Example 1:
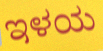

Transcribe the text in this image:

ಇಳಯ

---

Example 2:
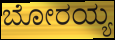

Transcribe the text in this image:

ಬೋರಯ್ಯ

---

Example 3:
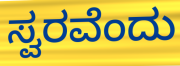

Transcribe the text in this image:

ಸ್ವರವೆಂದು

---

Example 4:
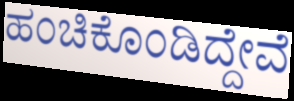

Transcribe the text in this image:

ಹಂಚಿಕೊಂಡಿದ್ದೇವೆ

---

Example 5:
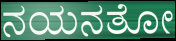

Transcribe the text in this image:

ನಯನತೋ